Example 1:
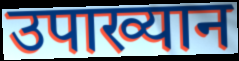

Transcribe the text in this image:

उपाख्यान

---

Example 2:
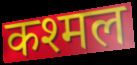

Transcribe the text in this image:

कश्मल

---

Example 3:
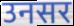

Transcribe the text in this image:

उनसर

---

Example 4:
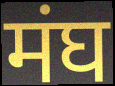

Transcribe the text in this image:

मंघ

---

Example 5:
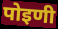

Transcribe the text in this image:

पोइणी